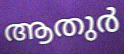
ആതുർ